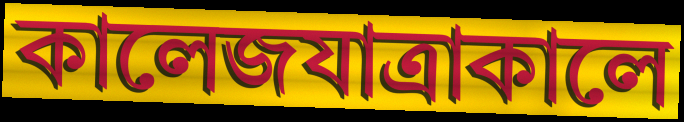
কালেজযাত্রাকালে